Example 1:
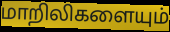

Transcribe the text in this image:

மாறிலிகளையும்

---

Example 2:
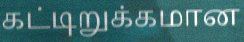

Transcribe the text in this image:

கட்டிறுக்கமான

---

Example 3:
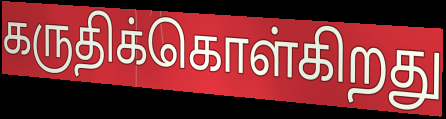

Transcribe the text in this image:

கருதிக்கொள்கிறது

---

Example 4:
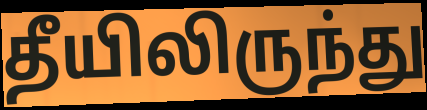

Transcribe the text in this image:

தீயிலிருந்து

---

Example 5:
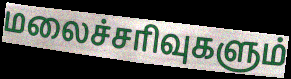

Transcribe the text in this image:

மலைச்சரிவுகளும்